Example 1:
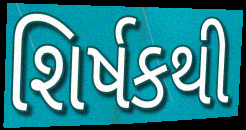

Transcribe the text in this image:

શિર્ષકથી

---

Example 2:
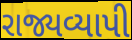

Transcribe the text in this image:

રાજ્યવ્યાપી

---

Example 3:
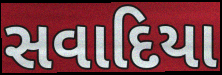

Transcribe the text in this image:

સવાદિયા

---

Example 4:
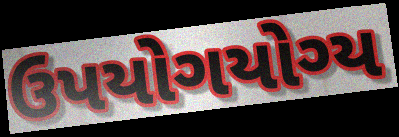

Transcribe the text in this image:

ઉપયોગયોગ્ય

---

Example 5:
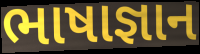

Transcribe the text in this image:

ભાષાજ્ઞાન